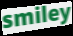
smiley